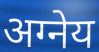
अग्नेय